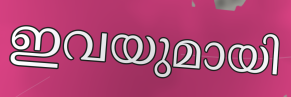
ഇവയുമായി